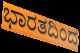
ಭಾರತದಿಂದ